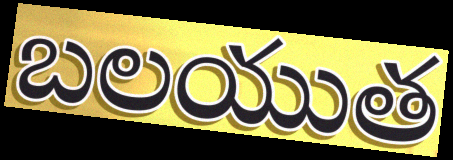
బలయుత